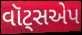
વૉટ્સએપ